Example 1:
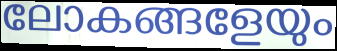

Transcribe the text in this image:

ലോകങ്ങളേയും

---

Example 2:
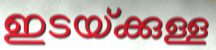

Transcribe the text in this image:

ഇടയ്‌ക്കുള്ള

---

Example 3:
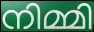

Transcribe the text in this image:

നിമ്മി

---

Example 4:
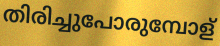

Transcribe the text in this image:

തിരിച്ചുപോരുമ്പോള്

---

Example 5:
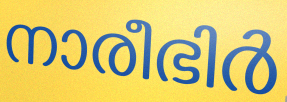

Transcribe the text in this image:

നാരീഭിർ